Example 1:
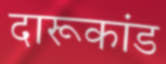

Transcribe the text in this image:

दारूकांड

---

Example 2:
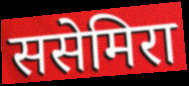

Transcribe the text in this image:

ससेमिरा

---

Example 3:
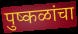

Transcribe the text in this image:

पुष्कळांचा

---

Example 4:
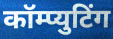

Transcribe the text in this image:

कॉम्प्युटिंग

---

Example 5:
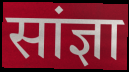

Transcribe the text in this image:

सांज्ञा